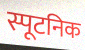
स्पूटनिक